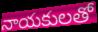
నాయకులతో